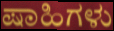
ಷಾಹಿಗಳು